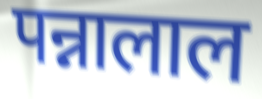
पन्नालाल